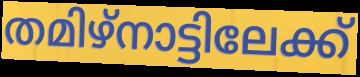
തമിഴ്നാട്ടിലേക്ക്